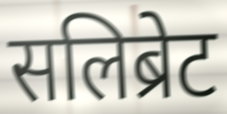
सलिब्रेट